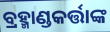
ବ୍ରହ୍ମାଣ୍ଡକର୍ତ୍ତାଙ୍କ